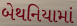
બેથનિયામાં